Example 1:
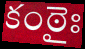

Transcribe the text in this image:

కంఠైః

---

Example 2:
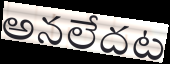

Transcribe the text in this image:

అనలేదట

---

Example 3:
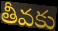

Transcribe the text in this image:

తీవకు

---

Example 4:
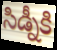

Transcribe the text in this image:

సిడ్నీకి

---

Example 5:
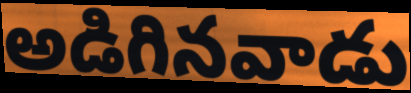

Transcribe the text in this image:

అడిగినవాడు